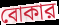
বোকার